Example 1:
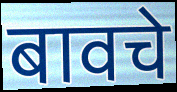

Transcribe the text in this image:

बावचे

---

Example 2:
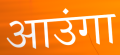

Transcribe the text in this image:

आउंगा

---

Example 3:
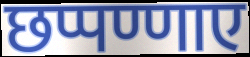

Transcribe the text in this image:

छप्पण्णाए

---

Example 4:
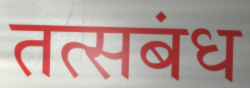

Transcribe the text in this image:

तत्सबंध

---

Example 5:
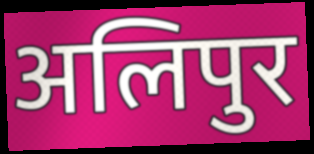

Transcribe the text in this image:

अलिपुर